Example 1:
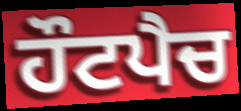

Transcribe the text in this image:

ਹੌਟਪੈਚ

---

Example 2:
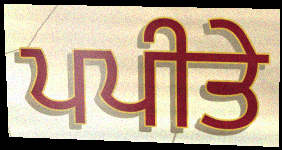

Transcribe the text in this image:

ਪਪੀਤੇ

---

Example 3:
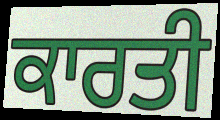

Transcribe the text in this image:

ਕਾਰਤੀ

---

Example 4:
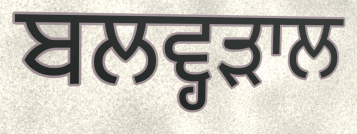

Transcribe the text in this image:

ਬਲਵ੍ਹੜਾਲ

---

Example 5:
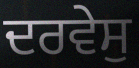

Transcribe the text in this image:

ਦਰਵੇਸੁ